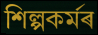
শিল্পকৰ্মৰ